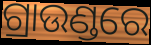
ଗ୍ରାଉଣ୍ଡରେ